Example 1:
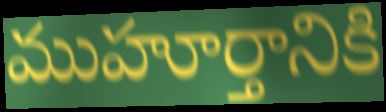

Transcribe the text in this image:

ముహూర్తానికి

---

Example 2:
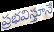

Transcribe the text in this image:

ప్రభవిస్తూనే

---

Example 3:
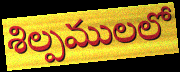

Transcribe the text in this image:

శిల్పములలో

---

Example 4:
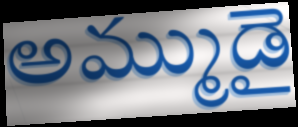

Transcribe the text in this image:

అమ్ముడై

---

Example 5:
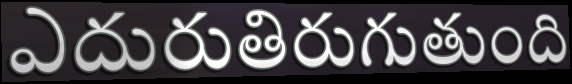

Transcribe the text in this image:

ఎదురుతిరుగుతుంది